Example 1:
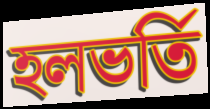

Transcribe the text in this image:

হলভর্তি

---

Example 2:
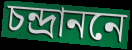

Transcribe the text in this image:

চন্দ্রাননে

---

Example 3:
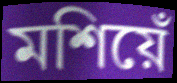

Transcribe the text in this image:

মশিয়েঁ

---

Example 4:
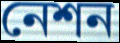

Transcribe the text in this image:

নেশন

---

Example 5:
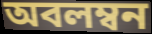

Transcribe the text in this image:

অবলম্বন